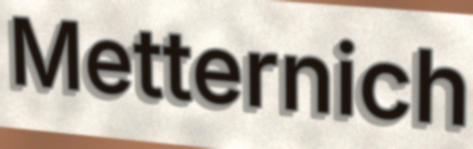
Metternich